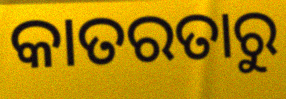
କାତରତାରୁ